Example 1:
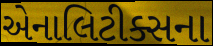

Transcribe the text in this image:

એનાલિટીક્સના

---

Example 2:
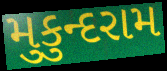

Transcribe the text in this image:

મુકુન્દરામ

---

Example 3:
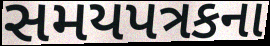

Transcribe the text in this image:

સમયપત્રકના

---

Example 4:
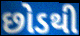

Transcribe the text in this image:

છોડથી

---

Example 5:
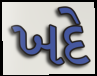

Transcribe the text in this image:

ખદે